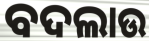
ବଦଲାଉ